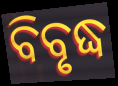
ବିବୃଦ୍ଧ